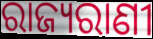
ରାଜ୍ୟରାଣୀ